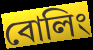
বোলিং